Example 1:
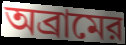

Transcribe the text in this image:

অব্রামের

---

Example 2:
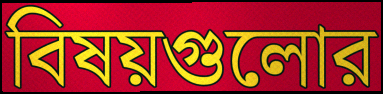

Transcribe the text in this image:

বিষয়গুলোর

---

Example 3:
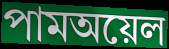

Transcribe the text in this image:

পামঅয়েল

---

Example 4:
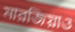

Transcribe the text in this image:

মারজিয়াও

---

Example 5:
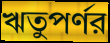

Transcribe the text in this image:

ঋতুপর্ণর